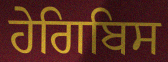
ਹੇਗਿਬਿਸ